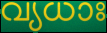
വ്യധാഃ